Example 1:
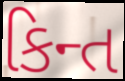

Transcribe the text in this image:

કિન્ત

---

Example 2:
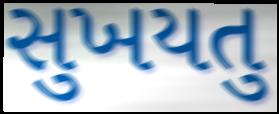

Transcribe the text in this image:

સુખયતુ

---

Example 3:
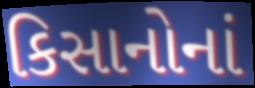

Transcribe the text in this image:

કિસાનોનાં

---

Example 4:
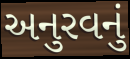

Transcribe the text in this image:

અનુરવનું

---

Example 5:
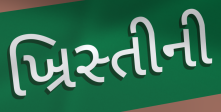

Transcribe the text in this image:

ખ્રિસ્તીની